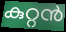
കുറ്റൻ